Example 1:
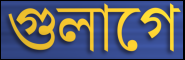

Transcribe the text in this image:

গুলাগে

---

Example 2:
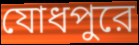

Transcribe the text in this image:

যোধপুরে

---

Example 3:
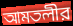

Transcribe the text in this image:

আমতলীর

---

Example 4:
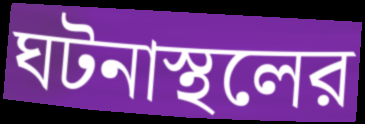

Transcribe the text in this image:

ঘটনাস্থলের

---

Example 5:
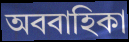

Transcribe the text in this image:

অববাহিকা